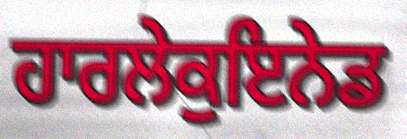
ਹਾਰਲੇਕੁਇਨੇਡ